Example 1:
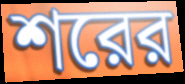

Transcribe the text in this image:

শরের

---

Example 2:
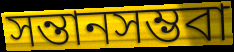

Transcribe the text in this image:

সন্তানসম্ভবা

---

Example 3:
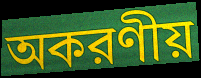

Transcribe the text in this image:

অকরণীয়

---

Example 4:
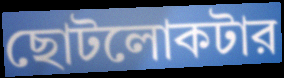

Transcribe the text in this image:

ছোটলোকটার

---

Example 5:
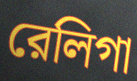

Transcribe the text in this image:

রেলিগা